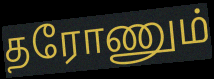
தரோணும்